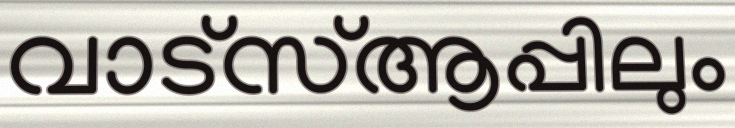
വാട്സ്ആപ്പിലും